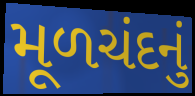
મૂળચંદનું